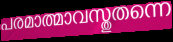
പരമാത്മാവസ്തുതന്നെ